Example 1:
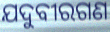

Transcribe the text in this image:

ଯଦୁବୀରଗଣ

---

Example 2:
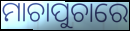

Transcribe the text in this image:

ମାଚାପୁଚାରେ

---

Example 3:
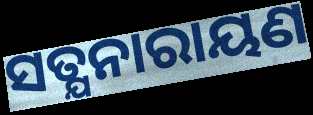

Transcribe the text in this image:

ସତ୍ଯନାରାୟଣ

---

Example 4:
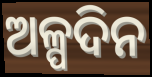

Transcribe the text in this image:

ଅଳ୍ପଦିନ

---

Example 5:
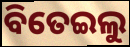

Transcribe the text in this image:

ବିତେଇଲୁ